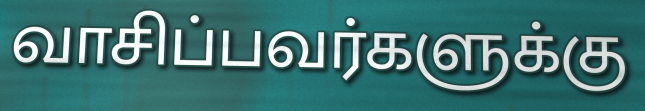
வாசிப்பவர்களுக்கு